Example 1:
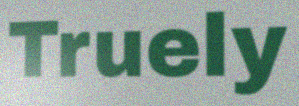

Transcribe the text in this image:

Truely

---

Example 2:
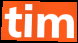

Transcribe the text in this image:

tim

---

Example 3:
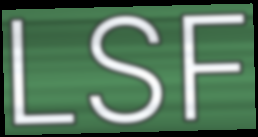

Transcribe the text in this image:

LSF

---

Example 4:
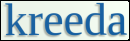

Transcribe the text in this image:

kreeda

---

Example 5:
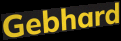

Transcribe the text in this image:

Gebhard